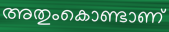
അതുംകൊണ്ടാണ്